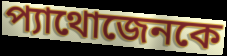
প্যাথোজেনকে